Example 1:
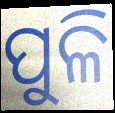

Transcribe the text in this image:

ପୁଳି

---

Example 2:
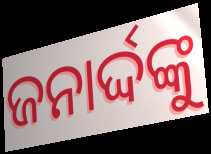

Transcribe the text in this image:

ଜନାର୍ଦ୍ଦଙ୍କୁ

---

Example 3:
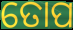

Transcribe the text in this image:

ତୋପ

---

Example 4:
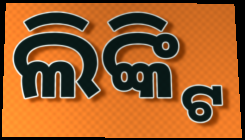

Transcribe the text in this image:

ଲିଙ୍କ୍ଟି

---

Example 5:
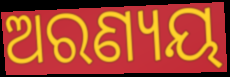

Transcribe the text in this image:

ଅରଣ୍ୟୟ